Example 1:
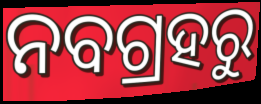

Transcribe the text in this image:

ନବଗ୍ରହରୁ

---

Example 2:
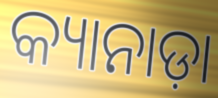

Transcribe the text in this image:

କ୍ୟାନାଡ଼ା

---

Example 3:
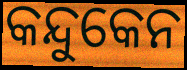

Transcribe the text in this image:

କନ୍ଦୁକେନ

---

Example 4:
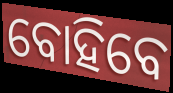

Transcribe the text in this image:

ବୋହିବେ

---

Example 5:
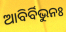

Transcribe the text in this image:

ଆବିର୍ବିଭୁନଃ